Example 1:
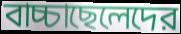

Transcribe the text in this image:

বাচ্চাছেলেদের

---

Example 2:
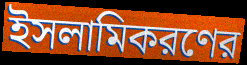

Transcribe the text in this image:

ইসলামিকরণের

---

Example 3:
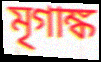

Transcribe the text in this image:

মৃগাঙ্ক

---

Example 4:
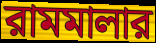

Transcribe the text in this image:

রামমালার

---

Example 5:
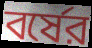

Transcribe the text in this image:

বর্ষের